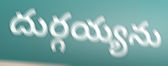
దుర్గయ్యను